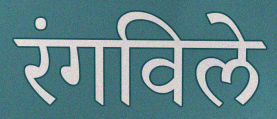
रंगविले